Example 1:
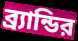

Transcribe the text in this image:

ব্র্যান্ডির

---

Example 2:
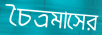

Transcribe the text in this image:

চৈত্রমাসের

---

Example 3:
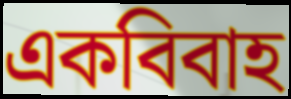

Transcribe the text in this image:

একবিবাহ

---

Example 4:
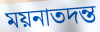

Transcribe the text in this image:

ময়নাতদন্ত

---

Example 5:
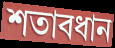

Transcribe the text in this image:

শতাবধান